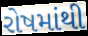
રોષમાંથી